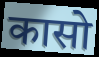
कासो